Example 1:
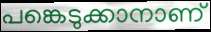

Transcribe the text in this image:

പങ്കെടുക്കാനാണ്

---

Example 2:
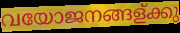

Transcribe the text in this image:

വയോജനങ്ങള്ക്കു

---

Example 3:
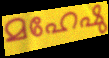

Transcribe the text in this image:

മഹേഷു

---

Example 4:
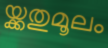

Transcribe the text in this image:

യ്ക്കതുമൂലം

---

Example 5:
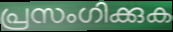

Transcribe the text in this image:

പ്രസംഗിക്കുക